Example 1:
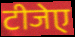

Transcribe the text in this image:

टीजेए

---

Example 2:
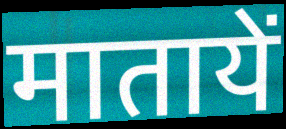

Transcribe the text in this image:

मातायें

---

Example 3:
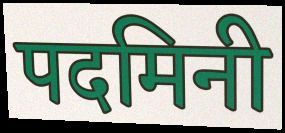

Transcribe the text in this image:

पदमिनी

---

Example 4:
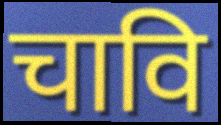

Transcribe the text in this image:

चावि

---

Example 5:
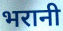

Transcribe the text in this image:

भरानी